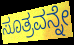
ಸೂತ್ರವನ್ನೇ